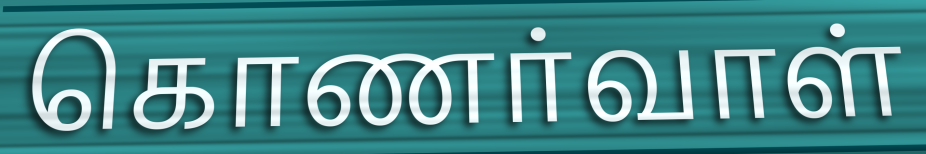
கொணர்வாள்